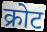
क्रोट